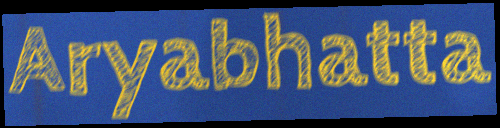
Aryabhatta